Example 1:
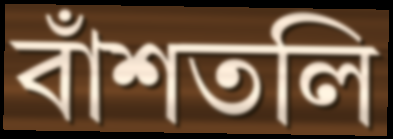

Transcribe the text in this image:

বাঁশতলি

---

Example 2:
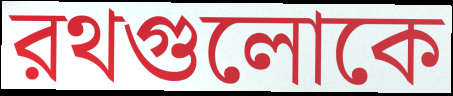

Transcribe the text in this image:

রথগুলোকে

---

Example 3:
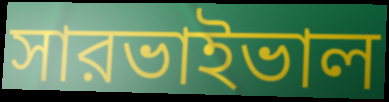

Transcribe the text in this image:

সারভাইভাল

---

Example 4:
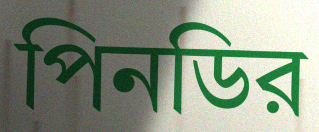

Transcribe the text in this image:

পিনডির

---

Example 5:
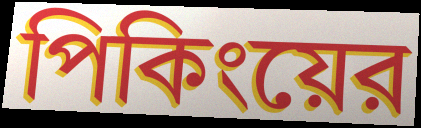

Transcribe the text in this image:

পিকিংয়ের